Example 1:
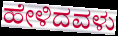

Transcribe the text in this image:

ಹೇಳಿದವಳು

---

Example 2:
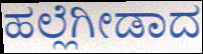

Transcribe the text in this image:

ಹಲ್ಲೆಗೀಡಾದ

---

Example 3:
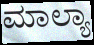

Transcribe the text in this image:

ಮಾಲ್ಯಾ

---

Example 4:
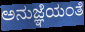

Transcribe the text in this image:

ಅನುಜ್ಞೆಯಂತೆ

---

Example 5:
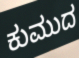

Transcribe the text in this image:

ಕುಮುದ